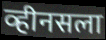
व्हीनसला